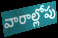
వారాల్లోపు